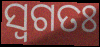
ସ୍ଵଗତଃ